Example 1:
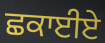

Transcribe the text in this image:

ਛਕਾਈਏ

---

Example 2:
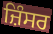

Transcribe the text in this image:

ਜ਼ਿੰਸਰ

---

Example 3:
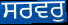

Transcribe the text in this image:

ਸਰਵਰੁ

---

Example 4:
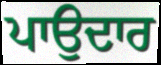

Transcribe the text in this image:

ਪਾਉਦਾਰ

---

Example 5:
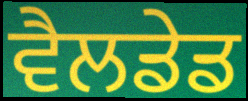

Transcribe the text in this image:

ਵੈਲਡੇਡ